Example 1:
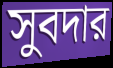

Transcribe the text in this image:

সুবদার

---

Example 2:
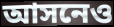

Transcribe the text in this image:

আসনেও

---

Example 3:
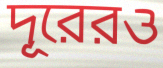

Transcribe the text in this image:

দূরেরও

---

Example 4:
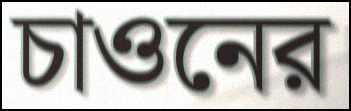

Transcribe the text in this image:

চাওনের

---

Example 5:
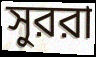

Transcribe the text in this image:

সুররা